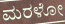
ಮರಳೋ